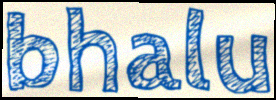
bhalu